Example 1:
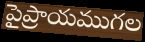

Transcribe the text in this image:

పైప్రాయముగల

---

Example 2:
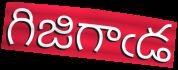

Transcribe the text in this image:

గిజిగాఁడ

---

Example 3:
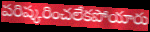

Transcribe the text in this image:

పరిష్కరించలేకపోయారు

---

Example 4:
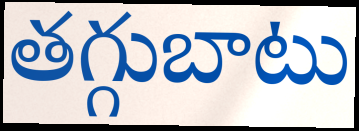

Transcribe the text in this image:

తగ్గుబాటు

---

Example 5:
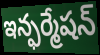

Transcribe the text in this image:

ఇన్ఫర్మేషన్